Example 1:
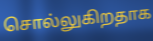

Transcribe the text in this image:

சொல்லுகிறதாக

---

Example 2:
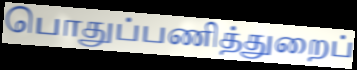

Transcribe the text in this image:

பொதுப்பணித்துறைப்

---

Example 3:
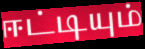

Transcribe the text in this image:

ஈட்டியும்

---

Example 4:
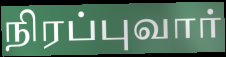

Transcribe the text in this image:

நிரப்புவார்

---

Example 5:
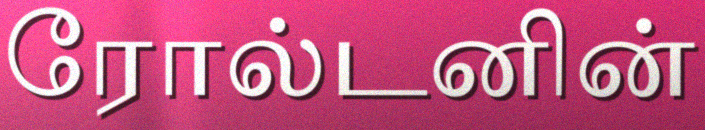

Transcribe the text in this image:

ரோல்டனின்